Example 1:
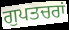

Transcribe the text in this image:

ਗੁਪਤਚਰਾਂ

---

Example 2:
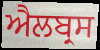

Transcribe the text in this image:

ਐਲਬ੍ਰਸ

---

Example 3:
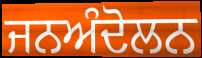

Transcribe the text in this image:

ਜਨਅੰਦੋਲਨ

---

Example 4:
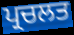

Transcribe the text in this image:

ਪ੍ਰਚਲਤ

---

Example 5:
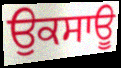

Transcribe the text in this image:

ਉਕਸਾਊ